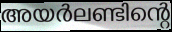
അയർലണ്ടിന്റെ